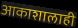
आकाशालाही